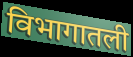
विभागातली